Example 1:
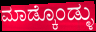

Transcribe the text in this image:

ಮಾಡ್ಕೊಂಡ್ಳು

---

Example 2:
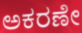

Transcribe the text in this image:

ಅಕರಣೇ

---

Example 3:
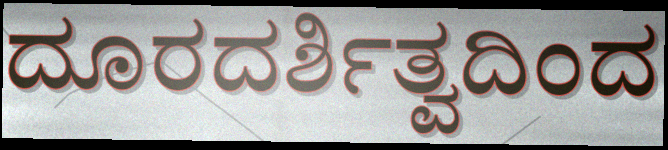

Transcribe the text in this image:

ದೂರದರ್ಶಿತ್ವದಿಂದ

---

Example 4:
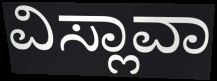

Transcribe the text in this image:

ವಿಸ್ಲಾವಾ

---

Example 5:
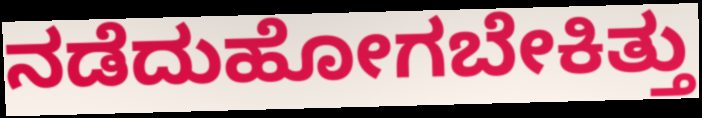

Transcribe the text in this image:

ನಡೆದುಹೋಗಬೇಕಿತ್ತು